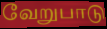
வேறுபாடு